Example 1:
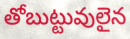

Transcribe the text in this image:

తోబుట్టువులైన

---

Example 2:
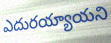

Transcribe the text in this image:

ఎదురయ్యాయని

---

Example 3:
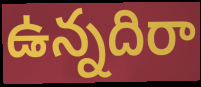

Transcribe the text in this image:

ఉన్నదిరా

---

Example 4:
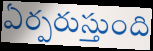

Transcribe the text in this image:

ఏర్పరుస్తుంది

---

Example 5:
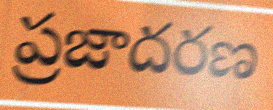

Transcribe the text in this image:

ప్రజాదరణ